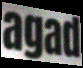
agad